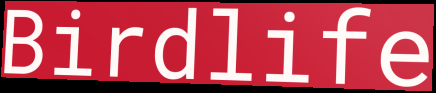
Birdlife